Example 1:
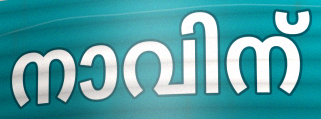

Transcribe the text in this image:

നാവിന്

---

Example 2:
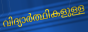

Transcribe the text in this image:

വിദ്യാർത്ഥികളുള്ള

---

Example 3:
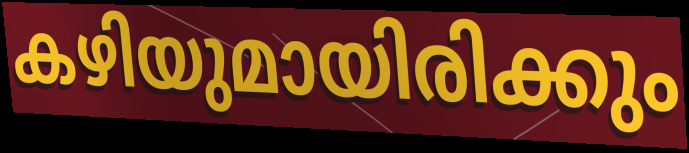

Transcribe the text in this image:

കഴിയുമായിരിക്കും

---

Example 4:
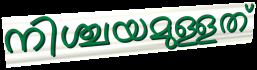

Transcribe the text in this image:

നിശ്ചയമുള്ളത്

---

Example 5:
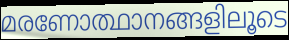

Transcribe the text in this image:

മരണോത്ഥാനങ്ങളിലൂടെ